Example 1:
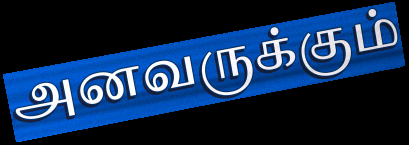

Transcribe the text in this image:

அனவருக்கும்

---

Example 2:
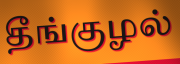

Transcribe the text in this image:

தீங்குழல்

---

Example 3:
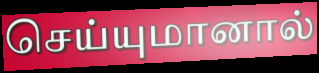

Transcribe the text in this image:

செய்யுமானால்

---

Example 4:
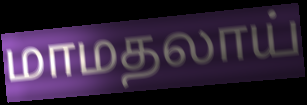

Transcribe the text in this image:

மாமதலாய்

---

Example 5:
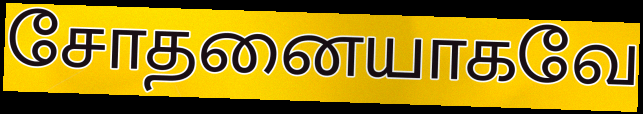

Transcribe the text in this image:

சோதனையாகவே